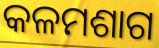
କଳମଶାଗ